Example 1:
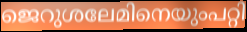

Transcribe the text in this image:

ജെറുശലേമിനെയുംപറ്റി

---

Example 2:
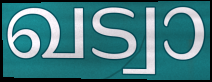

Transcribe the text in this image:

ഖട്വാ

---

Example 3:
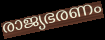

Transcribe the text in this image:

രാജ്യഭരണം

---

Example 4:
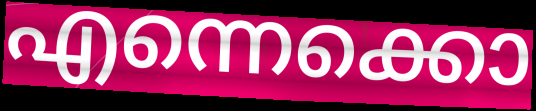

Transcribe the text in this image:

എന്നെക്കൊ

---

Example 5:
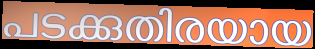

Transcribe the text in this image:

പടക്കുതിരയായ